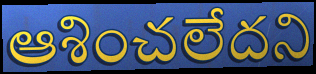
ఆశించలేదని